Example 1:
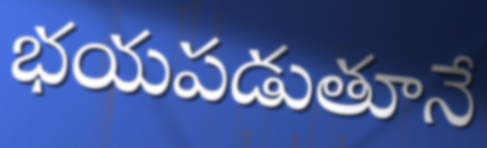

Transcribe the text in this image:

భయపడుతూనే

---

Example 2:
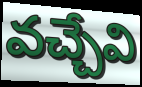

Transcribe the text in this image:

వచ్చేవి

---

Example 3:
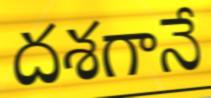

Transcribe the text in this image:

దశగానే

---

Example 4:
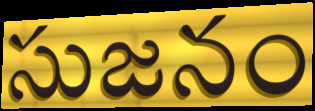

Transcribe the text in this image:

సుజనం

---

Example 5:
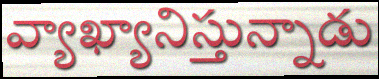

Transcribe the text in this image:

వ్యాఖ్యానిస్తున్నాడు